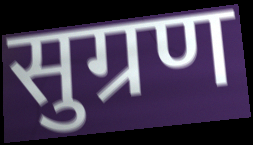
सुग्रण